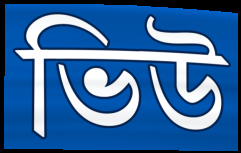
ভিউ